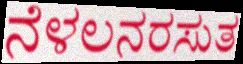
ನೆಳಲನರಸುತ